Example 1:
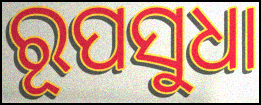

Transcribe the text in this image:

ରୂପସୁଧା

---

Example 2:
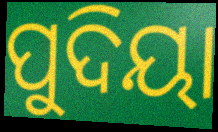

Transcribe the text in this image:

ପୁଦିୟା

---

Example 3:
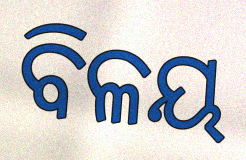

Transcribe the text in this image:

ବିଳୟ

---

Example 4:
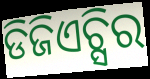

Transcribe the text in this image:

ଡିଜିଏଚ୍ସିର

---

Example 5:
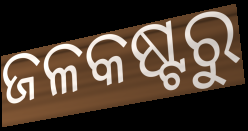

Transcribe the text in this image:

ଜଳକଷ୍ଟରୁ